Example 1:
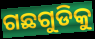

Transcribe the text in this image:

ଗଛଗୁଡିକୁ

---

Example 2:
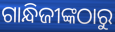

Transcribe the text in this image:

ଗାନ୍ଧିଜୀଙ୍କଠାରୁ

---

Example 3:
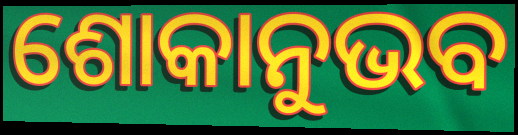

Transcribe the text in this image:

ଶୋକାନୁଭବ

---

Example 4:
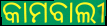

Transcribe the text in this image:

କାମବାଲୀ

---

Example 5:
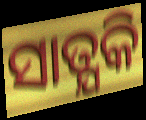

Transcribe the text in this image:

ସାତ୍ଯକି